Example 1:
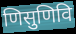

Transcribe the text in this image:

णिसुणिवि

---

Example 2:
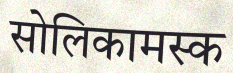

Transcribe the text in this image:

सोलिकामस्क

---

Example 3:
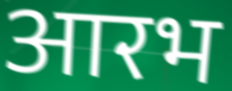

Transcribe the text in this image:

आरभ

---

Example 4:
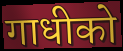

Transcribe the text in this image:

गाधीको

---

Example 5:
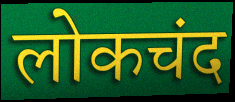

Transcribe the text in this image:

लोकचंद